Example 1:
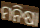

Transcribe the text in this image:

ମନିଷା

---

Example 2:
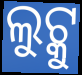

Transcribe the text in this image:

ଲୁଟ୍କୁ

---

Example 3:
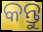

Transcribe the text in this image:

କନ୍ତୁ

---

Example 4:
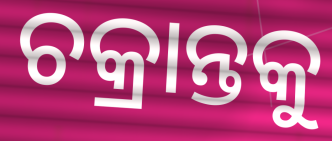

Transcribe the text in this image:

ଚକ୍ରାନ୍ତକୁ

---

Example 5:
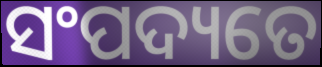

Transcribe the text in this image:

ସଂପଦ୍ୟତେ